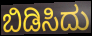
ಬಿಡಿಸಿದು